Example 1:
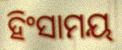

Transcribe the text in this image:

ହିଂସାମୟ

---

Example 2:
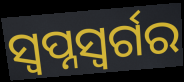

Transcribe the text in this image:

ସ୍ୱପ୍ନସ୍ୱର୍ଗର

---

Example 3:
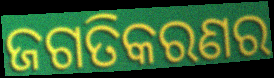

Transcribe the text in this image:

ଜଗତିକରଣର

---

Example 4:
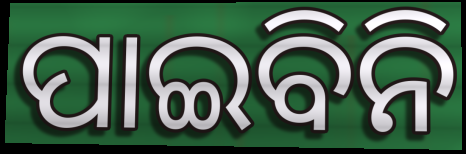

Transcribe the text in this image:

ପାଇବିନି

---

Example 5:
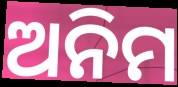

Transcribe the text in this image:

ଅନିମ